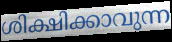
ശിക്ഷിക്കാവുന്ന